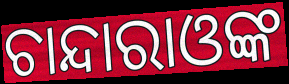
ଚାନ୍ଦାରାଓଙ୍କ